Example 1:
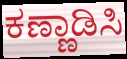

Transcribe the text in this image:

ಕಣ್ಣಾಡಿಸಿ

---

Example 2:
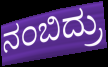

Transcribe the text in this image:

ನಂಬಿದ್ರು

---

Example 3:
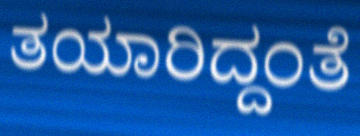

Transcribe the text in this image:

ತಯಾರಿದ್ದಂತೆ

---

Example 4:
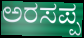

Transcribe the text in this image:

ಅರಸಪ್ಪ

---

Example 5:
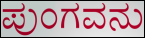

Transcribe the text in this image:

ಪುಂಗವನು